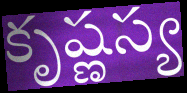
కృష్ణస్య